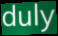
duly